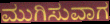
ಮುಗಿಸುವಾಗ